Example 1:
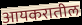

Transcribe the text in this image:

आयकरातील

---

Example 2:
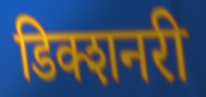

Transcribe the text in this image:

डिक्शनरी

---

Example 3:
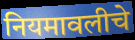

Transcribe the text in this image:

नियमावलीचे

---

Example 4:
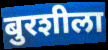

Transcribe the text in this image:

बुरशीला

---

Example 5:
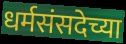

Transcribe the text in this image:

धर्मसंसदेच्या